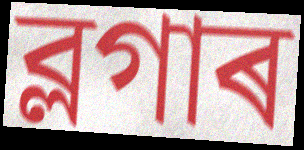
ব্লগাৰ